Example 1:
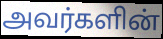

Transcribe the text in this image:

அவர்களின்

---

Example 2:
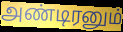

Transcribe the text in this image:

அண்டிரனும்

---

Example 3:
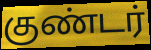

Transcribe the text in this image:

குண்டர்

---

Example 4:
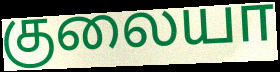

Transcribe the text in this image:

குலையா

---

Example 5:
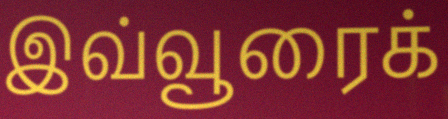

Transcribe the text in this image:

இவ்வூரைக்